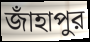
জাঁহাপুর